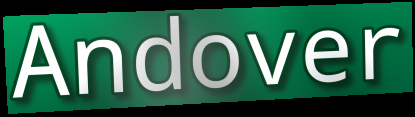
Andover